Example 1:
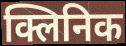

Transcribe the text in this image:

क्लिनिक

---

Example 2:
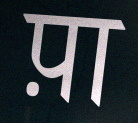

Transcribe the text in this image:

प़ा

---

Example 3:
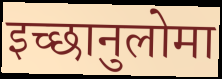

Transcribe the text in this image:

इच्छानुलोमा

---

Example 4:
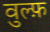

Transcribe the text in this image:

वुल्फ़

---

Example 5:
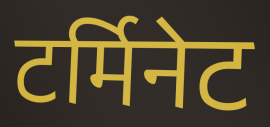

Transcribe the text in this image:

टर्मिनेट